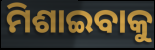
ମିଶାଇବାକୁ